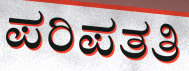
ಪರಿಪತತಿ